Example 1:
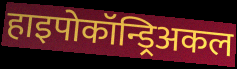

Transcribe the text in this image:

हाइपोकॉन्ड्रिअकल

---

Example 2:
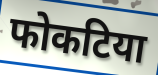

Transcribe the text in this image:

फोकटिया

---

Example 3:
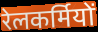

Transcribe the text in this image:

रेलकर्मियों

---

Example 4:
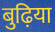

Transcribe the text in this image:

बुढ़िया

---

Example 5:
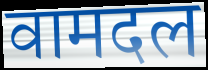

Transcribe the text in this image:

वामदल